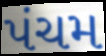
પંચમ